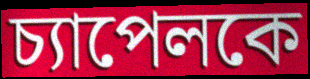
চ্যাপেলকে